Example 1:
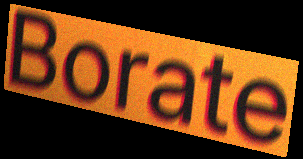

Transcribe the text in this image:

Borate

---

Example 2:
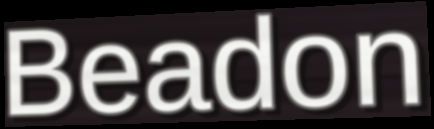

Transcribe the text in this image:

Beadon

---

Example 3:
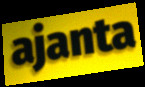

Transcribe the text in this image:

ajanta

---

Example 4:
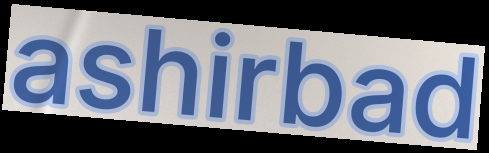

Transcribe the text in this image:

ashirbad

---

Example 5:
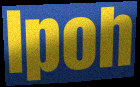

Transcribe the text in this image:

Ipoh